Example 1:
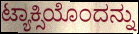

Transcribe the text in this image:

ಟ್ಯಾಕ್ಸಿಯೊಂದನ್ನು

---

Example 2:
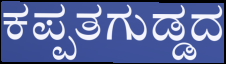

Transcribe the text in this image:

ಕಪ್ಪತಗುಡ್ಡದ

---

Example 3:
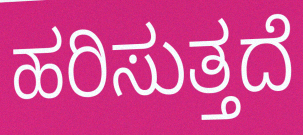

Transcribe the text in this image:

ಹರಿಸುತ್ತದೆ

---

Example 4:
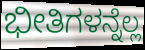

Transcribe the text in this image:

ಭೀತಿಗಳನ್ನೆಲ್ಲ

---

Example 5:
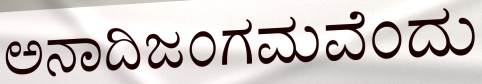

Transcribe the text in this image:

ಅನಾದಿಜಂಗಮವೆಂದು